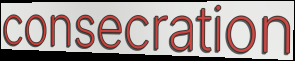
consecration